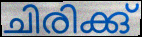
ചിരിക്കു്